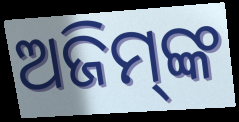
ଅଜିମ୍‌ଙ୍କ